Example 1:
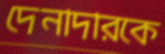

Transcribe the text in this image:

দেনাদারকে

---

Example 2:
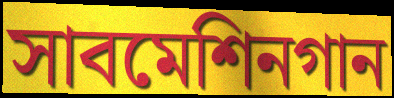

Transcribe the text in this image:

সাবমেশিনগান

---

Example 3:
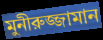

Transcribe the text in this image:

মুনীরুজ্জামান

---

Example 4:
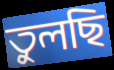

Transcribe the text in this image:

তুলছি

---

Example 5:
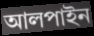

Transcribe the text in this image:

আলপাইন